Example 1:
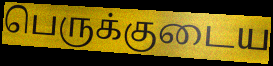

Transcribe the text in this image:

பெருக்குடைய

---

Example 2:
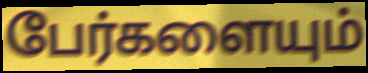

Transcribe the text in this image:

பேர்களையும்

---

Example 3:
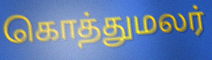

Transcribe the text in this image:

கொத்துமலர்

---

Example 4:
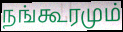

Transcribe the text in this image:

நங்கூரமும்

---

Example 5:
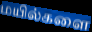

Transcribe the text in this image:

மயில்களை